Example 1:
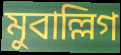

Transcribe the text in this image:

মুবাল্লিগ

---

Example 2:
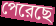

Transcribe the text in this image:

পেরেছে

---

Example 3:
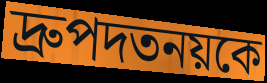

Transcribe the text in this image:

দ্রুপদতনয়কে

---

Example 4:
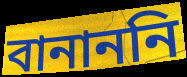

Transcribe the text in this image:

বানাননি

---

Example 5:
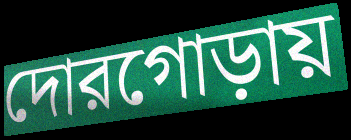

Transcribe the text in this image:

দোরগোড়ায়